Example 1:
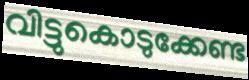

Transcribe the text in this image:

വിട്ടുകൊടുക്കേണ്ട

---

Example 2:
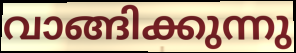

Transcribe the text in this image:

വാങ്ങിക്കുന്നു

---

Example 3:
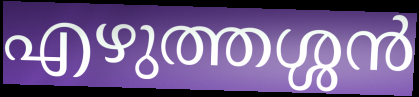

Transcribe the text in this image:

എഴുത്തശ്ശൻ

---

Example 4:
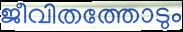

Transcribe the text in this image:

ജീവിതത്തോടും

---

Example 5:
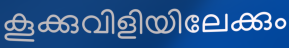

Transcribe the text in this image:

കൂക്കുവിളിയിലേക്കും